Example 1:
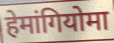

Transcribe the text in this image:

हेमांगियोमा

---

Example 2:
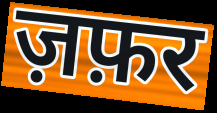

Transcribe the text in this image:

ज़फ़र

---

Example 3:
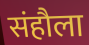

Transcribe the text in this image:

संहौला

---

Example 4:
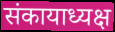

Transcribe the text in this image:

संकायाध्यक्ष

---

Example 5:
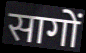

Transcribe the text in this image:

सागों